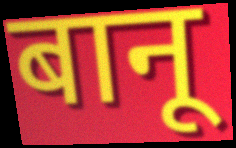
बानू